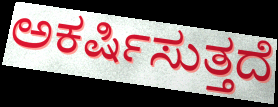
ಅಕರ್ಷಿಸುತ್ತದೆ